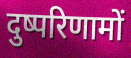
दुष्परिणामों